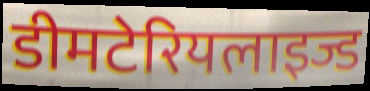
डीमटेरियलाइज्ड